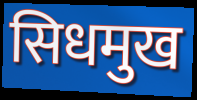
सिधमुख